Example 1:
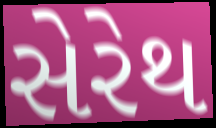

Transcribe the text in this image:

સેરેથ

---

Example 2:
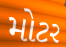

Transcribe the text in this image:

મોટર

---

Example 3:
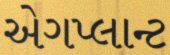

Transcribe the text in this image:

એગપ્લાન્ટ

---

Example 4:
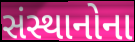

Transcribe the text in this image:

સંસ્થાનોના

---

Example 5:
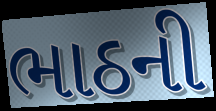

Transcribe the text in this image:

ભાઠની